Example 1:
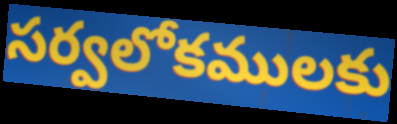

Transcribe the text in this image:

సర్వలోకములకు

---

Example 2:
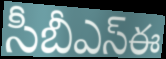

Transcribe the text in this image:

సీబీఎస్ఈ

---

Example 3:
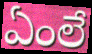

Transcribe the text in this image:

ఏంలే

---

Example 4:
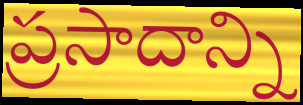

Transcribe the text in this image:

ప్రసాదాన్ని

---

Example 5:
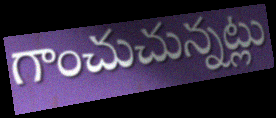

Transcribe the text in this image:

గాంచుచున్నట్లు